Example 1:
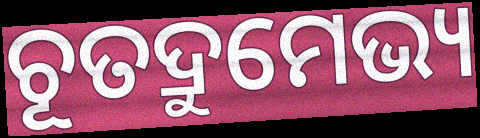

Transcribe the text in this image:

ଚୂତଦ୍ରୁମେଭ୍ୟ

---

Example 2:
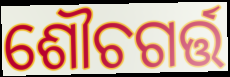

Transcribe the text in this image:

ଶୌଚଗର୍ତ୍ତ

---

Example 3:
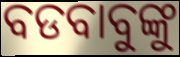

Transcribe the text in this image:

ବଡବାବୁଙ୍କୁ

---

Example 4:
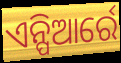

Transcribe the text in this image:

ଏନ୍ପିଆର୍ରେ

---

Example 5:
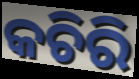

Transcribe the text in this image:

କଚିରି